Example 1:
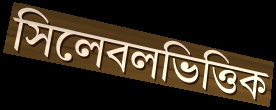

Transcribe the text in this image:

সিলেবলভিত্তিক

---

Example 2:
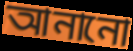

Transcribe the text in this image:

আনানো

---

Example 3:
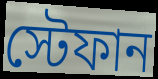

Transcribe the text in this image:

স্টেফান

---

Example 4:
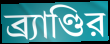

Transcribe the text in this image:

ব্র্যাণ্ডির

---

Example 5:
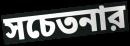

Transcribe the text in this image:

সচেতনার